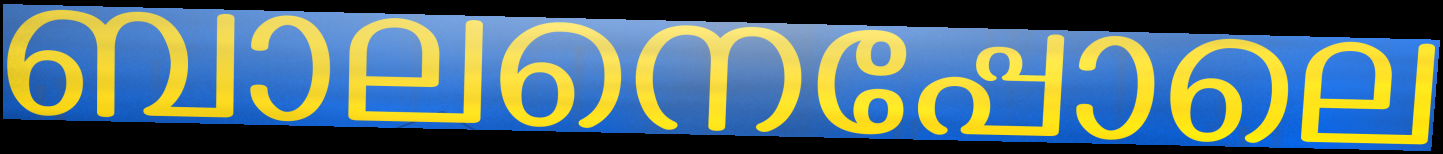
ബാലനെപ്പോലെ